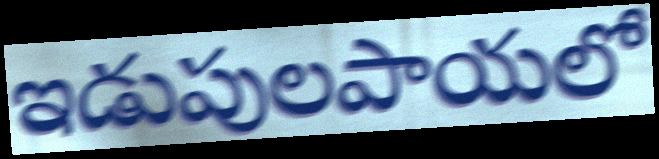
ఇడుపులపాయలో